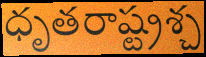
ధృతరాష్ట్రశ్చ